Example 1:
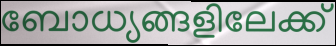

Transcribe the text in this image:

ബോധ്യങ്ങളിലേക്ക്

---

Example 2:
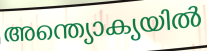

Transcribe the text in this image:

അന്ത്യൊക്യയിൽ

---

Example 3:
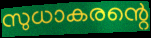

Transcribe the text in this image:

സുധാകരന്റെ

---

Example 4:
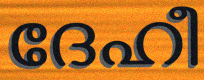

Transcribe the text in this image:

ദേഹീ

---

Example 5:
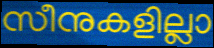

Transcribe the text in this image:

സീനുകളില്ലാ